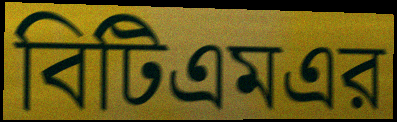
বিটিএমএর